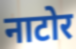
नाटोर